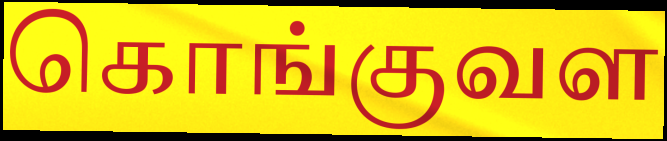
கொங்குவள